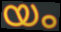
യം